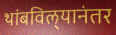
थांबविल्यानंतर